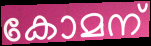
കോമന്